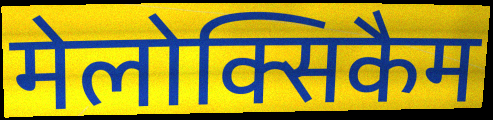
मेलोक्सिकैम